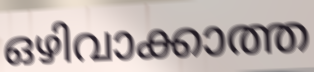
ഒഴിവാക്കാത്ത